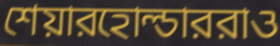
শেয়ারহোল্ডাররাও